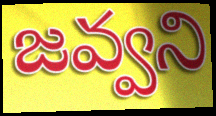
జవ్వని